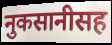
नुकसानीसह